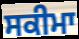
ਸਕੀਮਾ